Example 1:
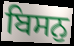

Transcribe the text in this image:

ਬਿਸਨੁ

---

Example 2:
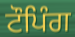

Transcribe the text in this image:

ਟੌਪਿੰਗ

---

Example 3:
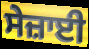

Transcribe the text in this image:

ਸੇਜ਼ਾਈ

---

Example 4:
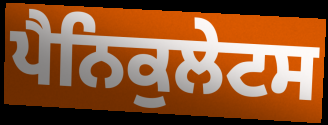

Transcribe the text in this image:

ਪੈਨਿਕੁਲੇਟਸ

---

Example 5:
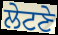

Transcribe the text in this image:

ਲੇਟਣੇ